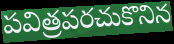
పవిత్రపరచుకొనిన